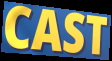
CAST